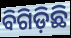
ବିଗିଡ଼ିଛି